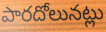
పారదోలునట్లు